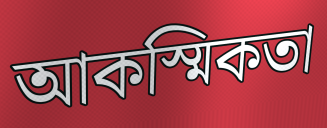
আকস্মিকতা